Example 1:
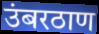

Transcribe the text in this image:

उंबरठाण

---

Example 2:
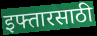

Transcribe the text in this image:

इफ्तारसाठी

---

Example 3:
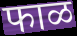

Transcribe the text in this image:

फाळ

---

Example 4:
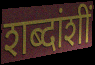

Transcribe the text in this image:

शब्दांशीं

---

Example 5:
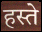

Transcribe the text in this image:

हस्ते